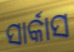
ସାର୍କାସ